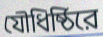
যৌধিষ্ঠিরে